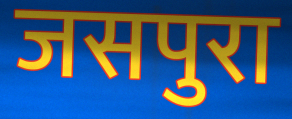
जसपुरा